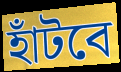
হাঁটবে